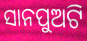
ସାନପୁଅଟି